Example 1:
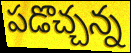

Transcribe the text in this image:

పడొచ్చన్న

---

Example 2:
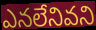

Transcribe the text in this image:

ఎనలేనివని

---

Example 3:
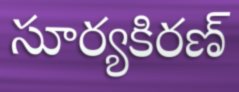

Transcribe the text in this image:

సూర్యకిరణ్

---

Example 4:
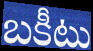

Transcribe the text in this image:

బకీటు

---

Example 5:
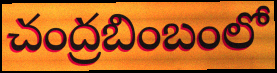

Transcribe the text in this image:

చంద్రబింబంలో